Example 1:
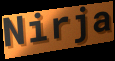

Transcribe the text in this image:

Nirja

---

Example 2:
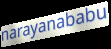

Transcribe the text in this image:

narayanababu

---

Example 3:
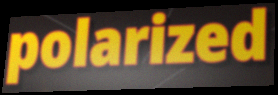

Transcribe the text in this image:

polarized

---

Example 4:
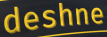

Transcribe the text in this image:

deshne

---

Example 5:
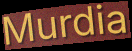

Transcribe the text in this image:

Murdia